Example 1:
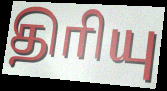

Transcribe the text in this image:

திரியு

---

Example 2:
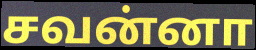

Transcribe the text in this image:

சவன்னா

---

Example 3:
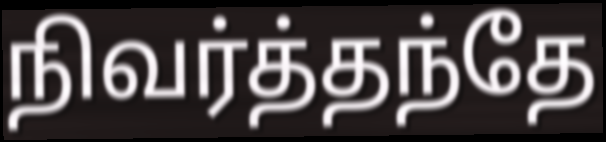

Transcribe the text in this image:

நிவர்த்தந்தே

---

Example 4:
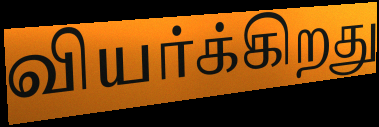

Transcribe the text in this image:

வியர்க்கிறது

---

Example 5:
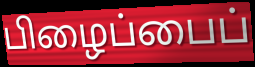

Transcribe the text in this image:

பிழைப்பைப்